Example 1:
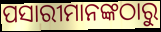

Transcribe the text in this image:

ପସାରୀମାନଙ୍କଠାରୁ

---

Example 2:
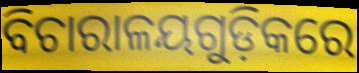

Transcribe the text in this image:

ବିଚାରାଳୟଗୁଡ଼ିକରେ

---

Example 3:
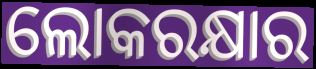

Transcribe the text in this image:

ଲୋକରକ୍ଷାର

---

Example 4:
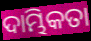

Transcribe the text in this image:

ଦାମ୍ଭିକତା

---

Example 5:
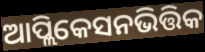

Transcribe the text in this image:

ଆପ୍ଲିକେସନଭିତ୍ତିକ